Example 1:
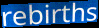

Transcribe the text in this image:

rebirths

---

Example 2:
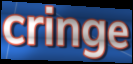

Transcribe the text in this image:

cringe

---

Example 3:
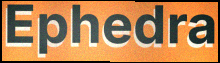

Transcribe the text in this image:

Ephedra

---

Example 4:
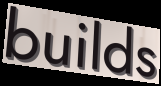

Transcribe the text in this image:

builds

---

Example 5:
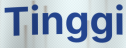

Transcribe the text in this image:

Tinggi